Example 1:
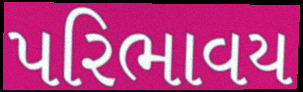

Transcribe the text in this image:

પરિભાવય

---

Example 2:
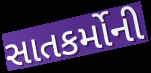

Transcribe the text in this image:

સાતકર્મોની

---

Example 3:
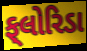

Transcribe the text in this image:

ફ્‌લોરિડા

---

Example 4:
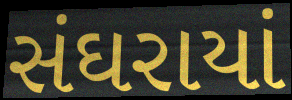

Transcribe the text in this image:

સંઘરાયાં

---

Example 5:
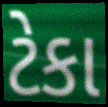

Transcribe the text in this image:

ટેકા